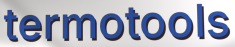
termotools